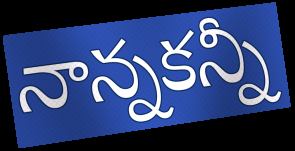
నాన్నకన్నీ